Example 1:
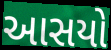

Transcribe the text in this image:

આસયો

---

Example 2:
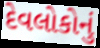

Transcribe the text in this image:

દેવલોકોનું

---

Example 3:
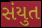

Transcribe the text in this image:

સંયુત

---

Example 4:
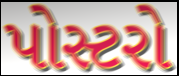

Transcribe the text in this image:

પોસ્ટરો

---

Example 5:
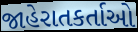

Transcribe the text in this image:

જાહેરાતકર્તાઓ